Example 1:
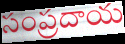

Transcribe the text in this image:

సంప్రదాయ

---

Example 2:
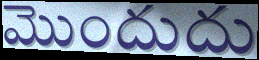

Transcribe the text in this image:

మొందుదు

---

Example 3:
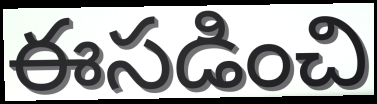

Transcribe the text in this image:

ఈసడించి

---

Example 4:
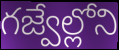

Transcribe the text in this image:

గజ్వేల్లోని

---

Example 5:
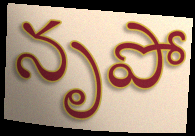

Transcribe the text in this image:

నృపో